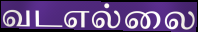
வடஎல்லை